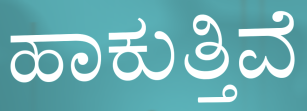
ಹಾಕುತ್ತಿವೆ